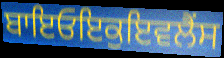
ਬਾਇਓਇਕੁਇਵਲੈਂਸ